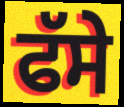
ਫੱਸੇ